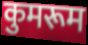
कुमरूम